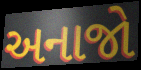
અનાજો